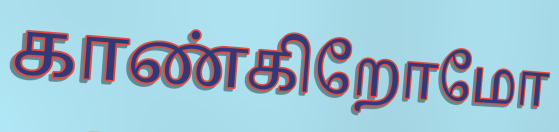
காண்கிறோமோ